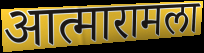
आत्मारामला